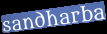
sandharba